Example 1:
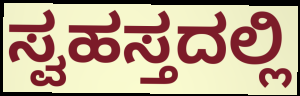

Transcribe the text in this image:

ಸ್ವಹಸ್ತದಲ್ಲಿ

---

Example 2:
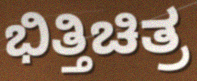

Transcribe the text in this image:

ಭಿತ್ತಿಚಿತ್ರ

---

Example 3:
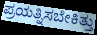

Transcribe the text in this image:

ಪ್ರಯತ್ನಿಸಬೇಕಿತ್ತು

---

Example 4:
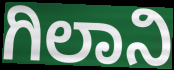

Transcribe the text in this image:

ಗಿಲಾನಿ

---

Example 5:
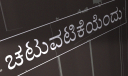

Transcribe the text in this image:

ಚಟುವಟಿಕೆಯೆಂದು